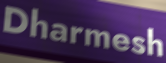
Dharmesh